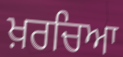
ਖ਼ਰਚਿਆ